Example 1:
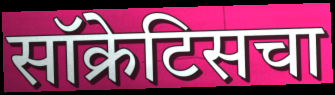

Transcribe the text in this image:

सॉक्रेटिसचा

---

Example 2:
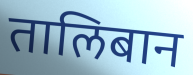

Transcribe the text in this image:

तालिबान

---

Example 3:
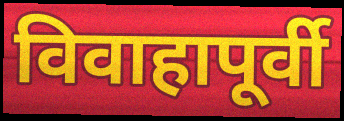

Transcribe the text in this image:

विवाहापूर्वी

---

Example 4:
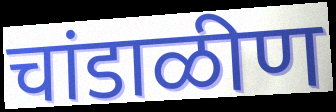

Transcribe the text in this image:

चांडाळीण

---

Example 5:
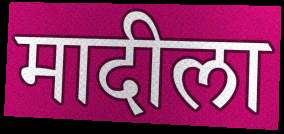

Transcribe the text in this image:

मादीला